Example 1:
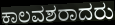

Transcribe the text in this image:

ಕಾಲವಶರಾದರು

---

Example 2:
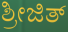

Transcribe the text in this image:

ಶ್ರೀಜಿತ್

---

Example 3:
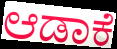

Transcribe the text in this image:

ಆಡಾಕೆ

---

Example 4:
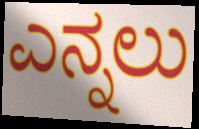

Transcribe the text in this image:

ಎನ್ನಲು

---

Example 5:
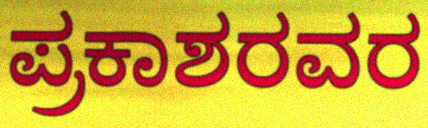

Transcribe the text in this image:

ಪ್ರಕಾಶರವರ